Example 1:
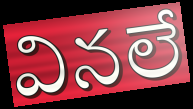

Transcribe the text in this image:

వినలే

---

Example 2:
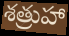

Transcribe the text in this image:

శత్రుహా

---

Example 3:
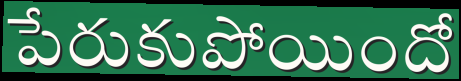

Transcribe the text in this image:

పేరుకుపోయిందో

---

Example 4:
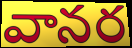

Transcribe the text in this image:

వానర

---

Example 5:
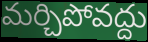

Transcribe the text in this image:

మర్చిపోవద్దు